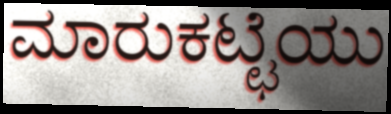
ಮಾರುಕಟ್ಟೆಯು